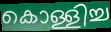
കൊള്ളിച്ച